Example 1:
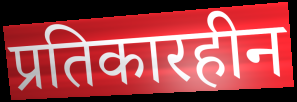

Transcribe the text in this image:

प्रतिकारहीन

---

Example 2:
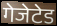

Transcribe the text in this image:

गेजेटेड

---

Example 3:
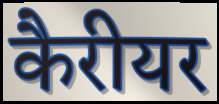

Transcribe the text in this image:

कैरीयर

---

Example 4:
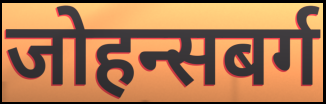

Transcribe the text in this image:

जोहन्सबर्ग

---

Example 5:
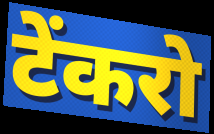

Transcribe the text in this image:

टेंकरो